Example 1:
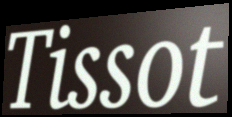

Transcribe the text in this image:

Tissot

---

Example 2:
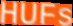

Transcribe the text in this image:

HUFs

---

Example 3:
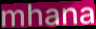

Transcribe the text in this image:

mhana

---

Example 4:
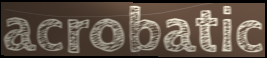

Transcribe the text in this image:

acrobatic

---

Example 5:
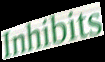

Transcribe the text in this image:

Inhibits